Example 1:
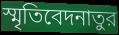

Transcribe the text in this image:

স্মৃতিবেদনাতুর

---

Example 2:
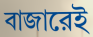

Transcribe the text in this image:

বাজারেই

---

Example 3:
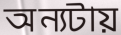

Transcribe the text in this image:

অন্যটায়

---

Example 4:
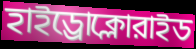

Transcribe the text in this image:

হাইড্রোক্লোরাইড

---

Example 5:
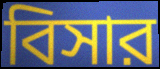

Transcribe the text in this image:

বিসার